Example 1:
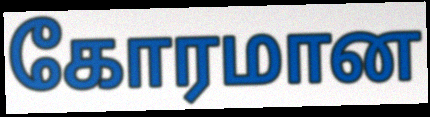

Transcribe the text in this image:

கோரமான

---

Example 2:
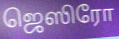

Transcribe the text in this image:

ஜெஸிரோ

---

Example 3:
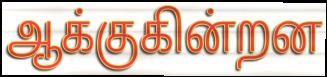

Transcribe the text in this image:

ஆக்குகின்றன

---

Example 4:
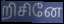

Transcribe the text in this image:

றிசினே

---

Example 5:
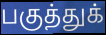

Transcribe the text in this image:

பகுத்துக்